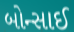
બોન્સાઈ